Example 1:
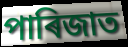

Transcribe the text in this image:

পাৰিজাত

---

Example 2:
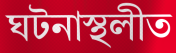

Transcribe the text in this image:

ঘটনাস্থলীত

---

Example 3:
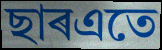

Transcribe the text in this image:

ছাৰএতে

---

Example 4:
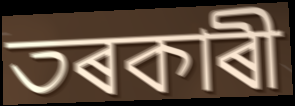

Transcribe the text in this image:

তৰকাৰী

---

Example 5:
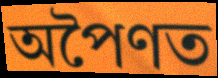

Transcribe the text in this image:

অপৈণত